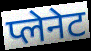
प्लेनेट